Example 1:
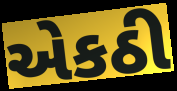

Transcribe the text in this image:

એકઠી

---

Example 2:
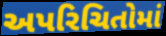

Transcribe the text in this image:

અપરિચિતોમાં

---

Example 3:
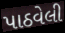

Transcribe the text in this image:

પાઠવેલી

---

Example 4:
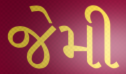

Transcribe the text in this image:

જેમી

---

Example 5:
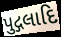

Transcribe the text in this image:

પુદ્ગલાદિ